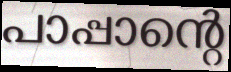
പാപ്പാന്റെ